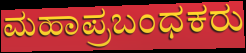
ಮಹಾಪ್ರಬಂಧಕರು